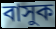
বাসুক